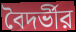
বৈদর্ভীর